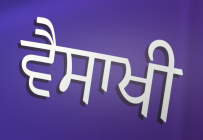
ਵੈਸਾਖੀ